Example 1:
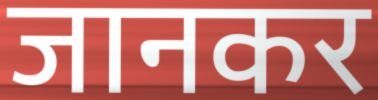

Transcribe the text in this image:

जानकर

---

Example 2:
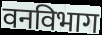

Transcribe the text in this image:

वनविभाग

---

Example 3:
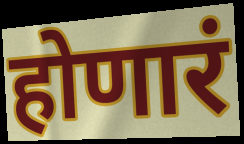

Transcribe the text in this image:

होणारं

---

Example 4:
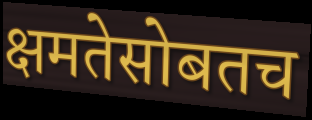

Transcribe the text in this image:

क्षमतेसोबतच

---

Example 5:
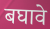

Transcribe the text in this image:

बघावे